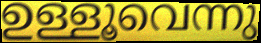
ഉള്ളൂവെന്നു